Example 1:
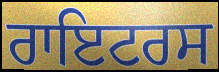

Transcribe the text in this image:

ਰਾਇਟਰਸ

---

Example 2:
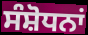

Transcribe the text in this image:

ਸੰਸ਼ੋਧਨਾਂ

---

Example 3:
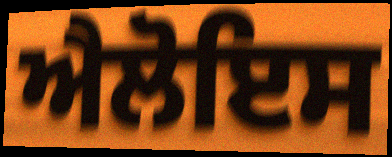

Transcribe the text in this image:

ਐਲੋਇਸ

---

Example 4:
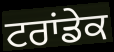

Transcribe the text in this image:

ਟਰਾਂਡੇਕ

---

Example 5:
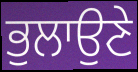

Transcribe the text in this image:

ਭੁਲਾਉਣੇ